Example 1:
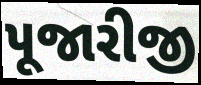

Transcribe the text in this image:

પૂજારીજી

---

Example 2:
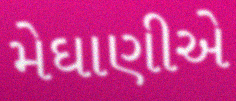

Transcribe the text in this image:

મેઘાણીએ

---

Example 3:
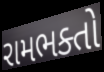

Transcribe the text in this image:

રામભક્તો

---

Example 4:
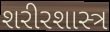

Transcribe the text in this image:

શરીરશાસ્ત્ર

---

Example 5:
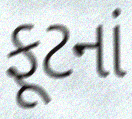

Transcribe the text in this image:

ફૂટનાં